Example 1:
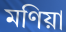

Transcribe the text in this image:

মণিয়া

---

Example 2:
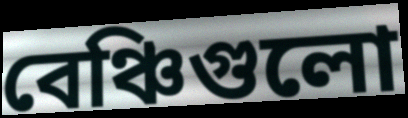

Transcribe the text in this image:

বেঞ্চিগুলো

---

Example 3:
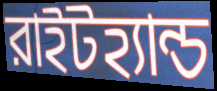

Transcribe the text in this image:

রাইটহ্যান্ড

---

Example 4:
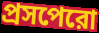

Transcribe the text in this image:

প্রসপেরো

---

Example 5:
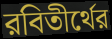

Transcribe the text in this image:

রবিতীর্থের